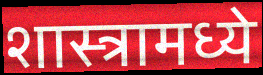
शास्त्रामध्ये